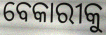
ବେକାରୀକୁ